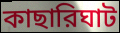
কাছারিঘাট